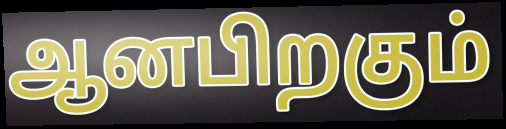
ஆனபிறகும்